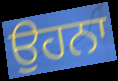
ਉਹਨਾ